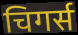
चिगर्स